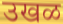
उखळ